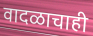
वादळाचाही